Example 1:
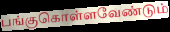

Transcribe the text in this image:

பங்குகொள்ளவேண்டும்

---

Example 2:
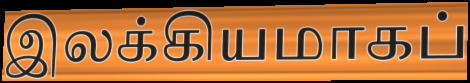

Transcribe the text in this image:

இலக்கியமாகப்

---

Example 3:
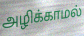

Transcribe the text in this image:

அழிக்காமல்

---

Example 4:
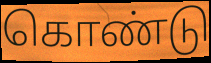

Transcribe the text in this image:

கொண்டு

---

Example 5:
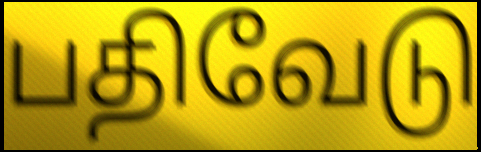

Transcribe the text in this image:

பதிவேடு